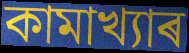
কামাখ্যাৰ